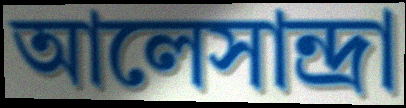
আলেসান্দ্রা